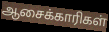
ஆசைக்காரிகள்